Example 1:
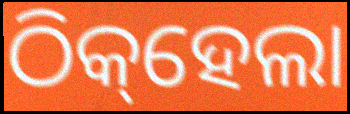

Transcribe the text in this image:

ଠିକ୍‌ହେଲା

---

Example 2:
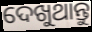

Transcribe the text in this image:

ଦେଖୁଥାନ୍ତୁ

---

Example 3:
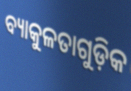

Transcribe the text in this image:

ବ୍ୟାକୁଳତାଗୁଡ଼ିକ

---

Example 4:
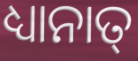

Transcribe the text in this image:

ଧ୍ୟାନାତ୍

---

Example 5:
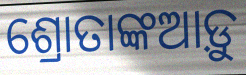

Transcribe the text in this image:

ଶ୍ରୋତାଙ୍କଆଡ଼ୁ